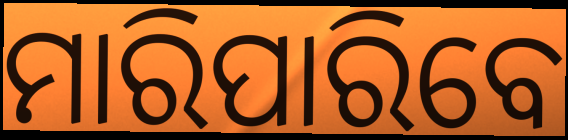
ମାରିପାରିବେ